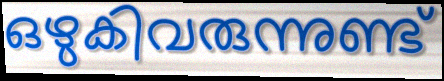
ഒഴുകിവരുന്നുണ്ട്